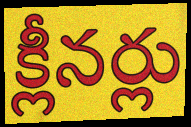
క్లీనర్లు